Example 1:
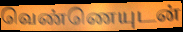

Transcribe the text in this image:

வெண்ணெயுடன்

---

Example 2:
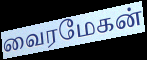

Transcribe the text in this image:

வைரமேகன்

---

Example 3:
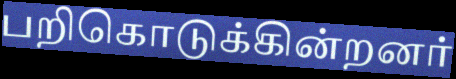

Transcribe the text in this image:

பறிகொடுக்கின்றனர்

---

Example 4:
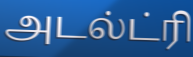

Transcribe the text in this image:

அடல்ட்ரி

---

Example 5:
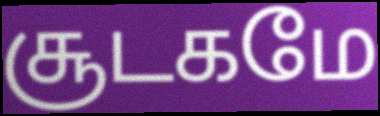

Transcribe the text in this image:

சூடகமே